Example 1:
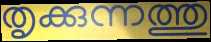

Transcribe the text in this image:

തൃക്കുന്നത്തു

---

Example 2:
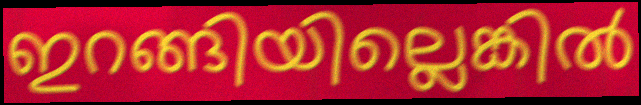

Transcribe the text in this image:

ഇറങ്ങിയില്ലെങ്കിൽ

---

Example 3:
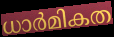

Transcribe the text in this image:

ധാർമികത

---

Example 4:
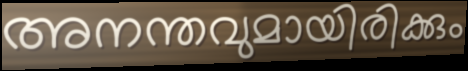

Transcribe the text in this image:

അനന്തവുമായിരിക്കും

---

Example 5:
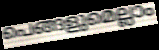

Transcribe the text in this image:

പെങ്ങളുമെല്ലാം